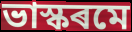
ভাস্কৰমে